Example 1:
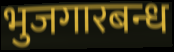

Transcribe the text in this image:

भुजगारबन्ध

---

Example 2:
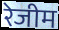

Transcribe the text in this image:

रेजीम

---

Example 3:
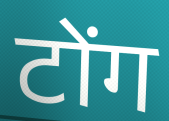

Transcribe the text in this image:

टोंग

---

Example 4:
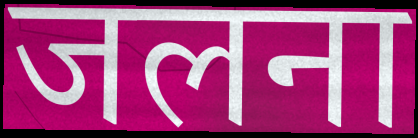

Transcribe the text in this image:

जलना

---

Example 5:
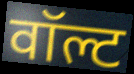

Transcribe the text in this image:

वॉल्ट